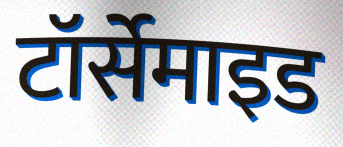
टॉर्सेमाइड